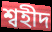
শ্বহীদ